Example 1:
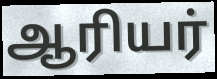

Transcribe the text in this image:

ஆரியர்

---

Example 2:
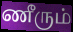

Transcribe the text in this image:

ணீரும்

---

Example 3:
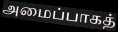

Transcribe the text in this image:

அமைப்பாகத்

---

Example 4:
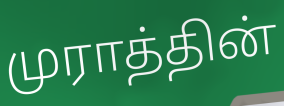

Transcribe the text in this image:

முராத்தின்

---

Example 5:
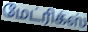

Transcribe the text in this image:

மேட்ரிக்ஸ்